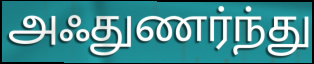
அஃதுணர்ந்து